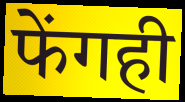
फेंगही